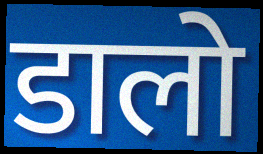
डालो